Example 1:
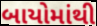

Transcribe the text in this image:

બાયોમાંથી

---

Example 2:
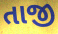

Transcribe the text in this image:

તાજી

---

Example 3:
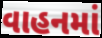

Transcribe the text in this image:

વાહનમાં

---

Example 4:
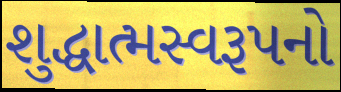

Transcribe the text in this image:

શુદ્ધાત્મસ્વરૂપનો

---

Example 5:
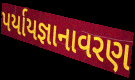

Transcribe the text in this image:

પર્યાયજ્ઞાનાવરણ